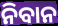
ନିବାନ